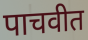
पाचवीत